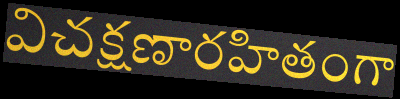
విచక్షణారహితంగా